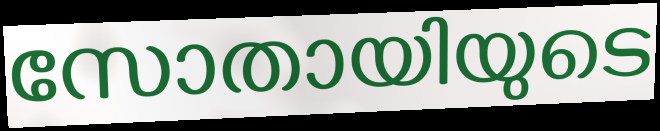
സോതായിയുടെ